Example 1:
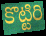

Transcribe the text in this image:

కొట్టిరి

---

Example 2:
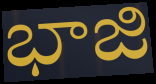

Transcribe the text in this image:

భాజి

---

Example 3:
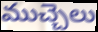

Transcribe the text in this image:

ముచ్చెలు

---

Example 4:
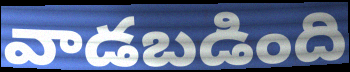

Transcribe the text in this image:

వాడబడింది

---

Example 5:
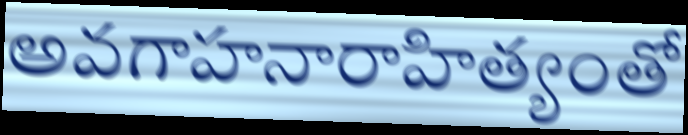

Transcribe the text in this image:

అవగాహనారాహిత్యంతో